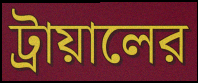
ট্রায়ালের